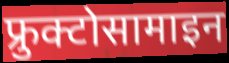
फ्रुक्टोसामाइन